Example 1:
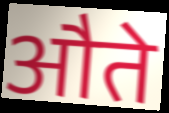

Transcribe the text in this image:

औते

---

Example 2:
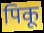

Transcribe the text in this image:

पिकू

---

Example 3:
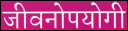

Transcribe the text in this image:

जीवनोपयोगी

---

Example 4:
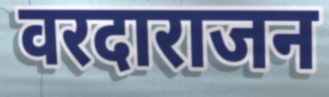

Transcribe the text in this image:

वरदाराजन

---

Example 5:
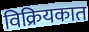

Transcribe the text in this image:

विक्रियकात